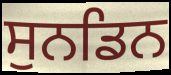
ਸੁਨਡਿਨ